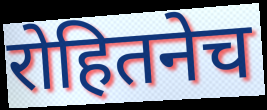
रोहितनेच